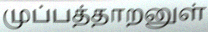
முப்பத்தாறனுள்